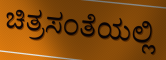
ಚಿತ್ರಸಂತೆಯಲ್ಲಿ